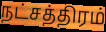
நட்சத்திரம்